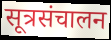
सूत्रसंचालन